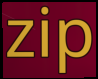
zip